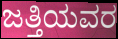
ಜತ್ತಿಯವರ